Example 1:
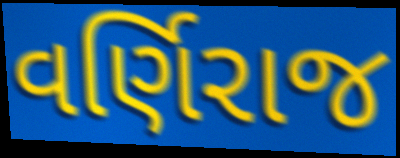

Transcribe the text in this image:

વર્ણિરાજ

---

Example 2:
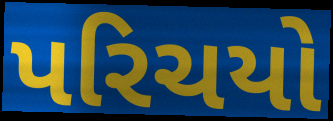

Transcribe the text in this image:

પરિચયો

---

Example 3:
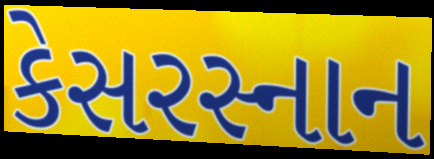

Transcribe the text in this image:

કેસરસ્નાન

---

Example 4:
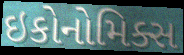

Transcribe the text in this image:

ઇકોનોમિક્સ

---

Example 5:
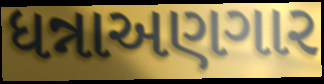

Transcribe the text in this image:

ધન્નાઅણગાર